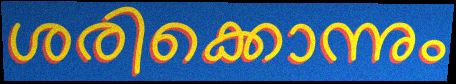
ശരിക്കൊന്നും